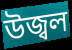
উজ্বল